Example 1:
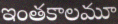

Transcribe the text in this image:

ఇంతకాలమూ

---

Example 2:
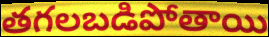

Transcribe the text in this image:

తగలబడిపోతాయి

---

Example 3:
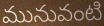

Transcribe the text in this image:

మునువంటి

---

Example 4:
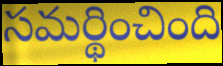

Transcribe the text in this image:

సమర్థించింది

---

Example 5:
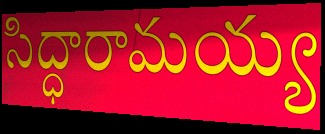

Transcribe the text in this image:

సిద్ధారామయ్య